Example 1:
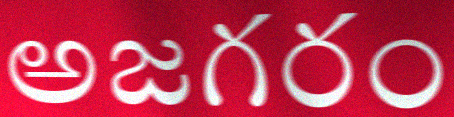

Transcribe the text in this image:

అజగరం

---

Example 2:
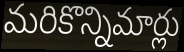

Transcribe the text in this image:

మరికొన్నిమార్లు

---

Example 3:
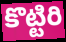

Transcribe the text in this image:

కొట్టిరి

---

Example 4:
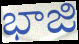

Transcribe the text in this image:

భాజి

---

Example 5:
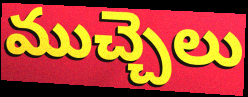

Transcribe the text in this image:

ముచ్చెలు